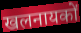
खलनायकों